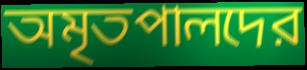
অমৃতপালদের